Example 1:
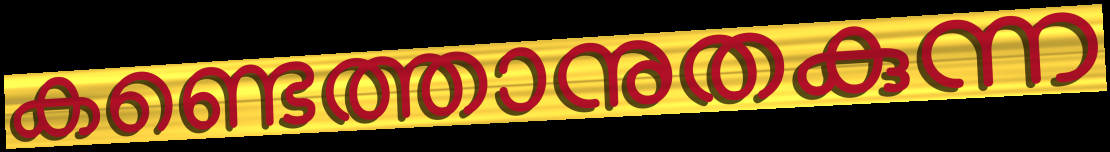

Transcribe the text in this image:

കണ്ടെത്താനുതകുന്ന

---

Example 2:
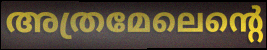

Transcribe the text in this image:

അത്രമേലെന്റെ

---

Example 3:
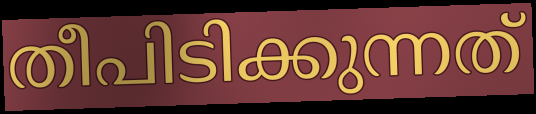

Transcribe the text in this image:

തീപിടിക്കുന്നത്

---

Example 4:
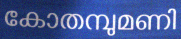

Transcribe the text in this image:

കോതമ്പുമണി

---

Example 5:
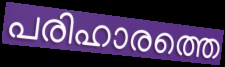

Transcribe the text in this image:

പരിഹാരത്തെ